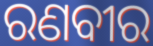
ରଣବୀର